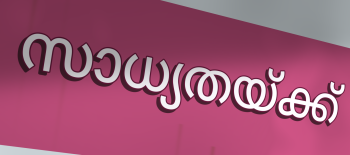
സാധ്യതയ്ക്ക്